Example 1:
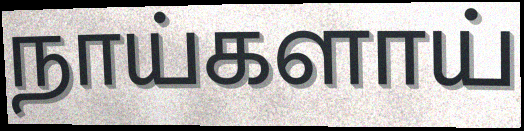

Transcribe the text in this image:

நாய்களாய்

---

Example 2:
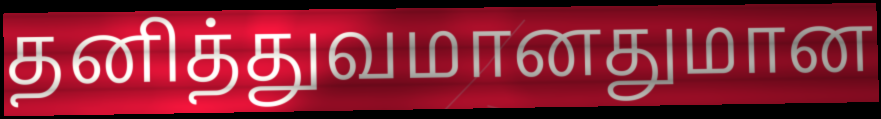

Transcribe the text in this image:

தனித்துவமானதுமான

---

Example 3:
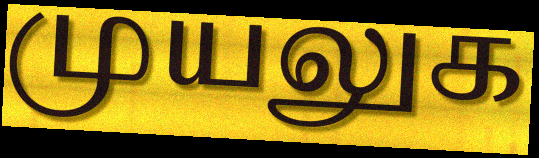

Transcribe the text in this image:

முயலுக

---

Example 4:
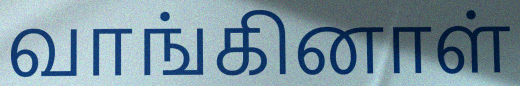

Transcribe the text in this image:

வாங்கினாள்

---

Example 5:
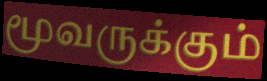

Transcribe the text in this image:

மூவருக்கும்